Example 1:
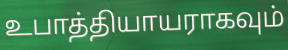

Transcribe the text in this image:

உபாத்தியாயராகவும்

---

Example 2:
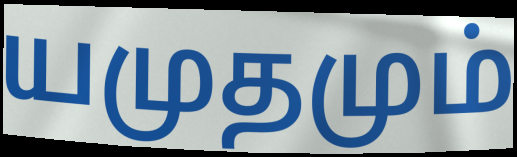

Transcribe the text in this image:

யமுதமும்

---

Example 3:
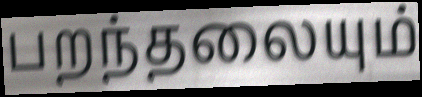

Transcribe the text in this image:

பறந்தலையும்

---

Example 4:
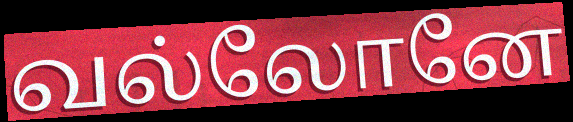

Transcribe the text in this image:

வல்லோனே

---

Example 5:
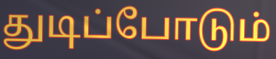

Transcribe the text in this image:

துடிப்போடும்